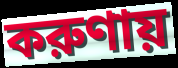
করুণায়